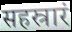
सहस्रारं